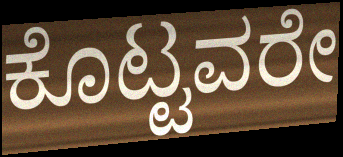
ಕೊಟ್ಟವರೇ